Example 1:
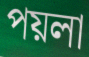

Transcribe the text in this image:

পয়লা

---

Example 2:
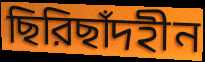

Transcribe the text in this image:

ছিরিছাঁদহীন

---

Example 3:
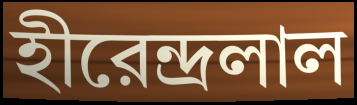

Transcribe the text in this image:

হীরেন্দ্রলাল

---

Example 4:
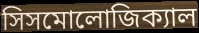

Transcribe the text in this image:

সিসমোলোজিক্যাল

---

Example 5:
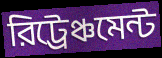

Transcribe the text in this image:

রিট্রেঞ্চমেন্ট